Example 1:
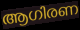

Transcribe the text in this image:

ആഗിരണ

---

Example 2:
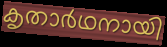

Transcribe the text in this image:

കൃതാർഥനായി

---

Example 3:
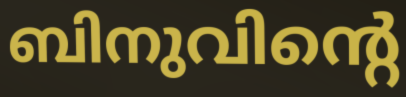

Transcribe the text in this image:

ബിനുവിന്റെ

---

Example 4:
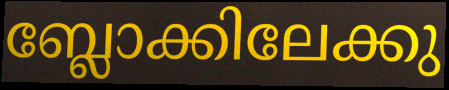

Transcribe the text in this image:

ബ്ലോക്കിലേക്കു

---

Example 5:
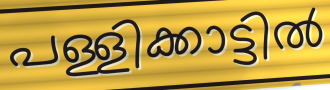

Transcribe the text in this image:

പള്ളിക്കാട്ടിൽ